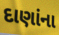
દાણાંના